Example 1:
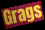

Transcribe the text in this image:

Grags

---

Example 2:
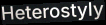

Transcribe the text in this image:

Heterostyly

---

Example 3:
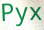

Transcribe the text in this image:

Pyx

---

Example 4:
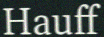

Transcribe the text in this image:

Hauff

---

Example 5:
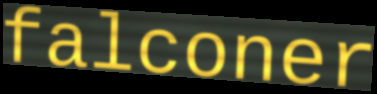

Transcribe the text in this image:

falconer